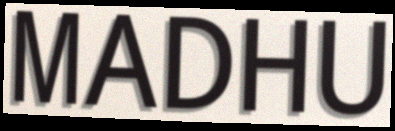
MADHU